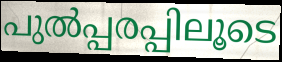
പുൽപ്പരപ്പിലൂടെ